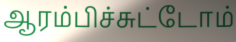
ஆரம்பிச்சுட்டோம்